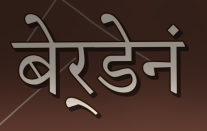
बेर्डेनं